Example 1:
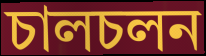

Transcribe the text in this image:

চালচলন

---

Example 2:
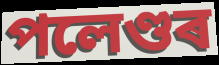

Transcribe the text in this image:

পলেণ্ডৰ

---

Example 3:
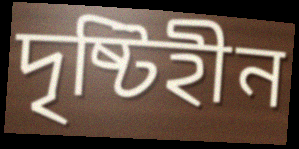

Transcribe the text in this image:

দৃষ্টিহীন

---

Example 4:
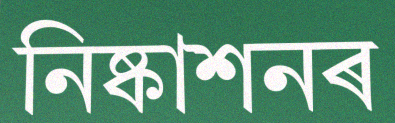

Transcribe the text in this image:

নিষ্কাশনৰ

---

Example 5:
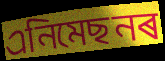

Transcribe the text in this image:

এনিমেছনৰ